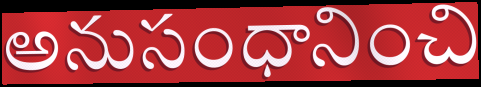
అనుసంధానించి